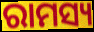
ରାମସ୍ୟ